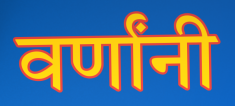
वर्णांनी